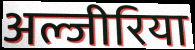
अल्जीरिया